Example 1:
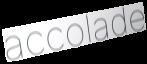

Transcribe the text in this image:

accolade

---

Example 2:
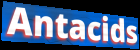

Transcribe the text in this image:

Antacids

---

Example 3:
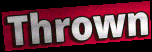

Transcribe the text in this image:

Thrown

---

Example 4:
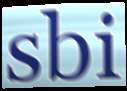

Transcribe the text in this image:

sbi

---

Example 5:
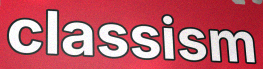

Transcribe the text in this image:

classism